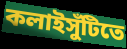
কলাইসুঁটিতে